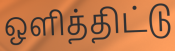
ஒளித்திட்டு